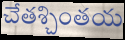
చేతశ్చింతయ